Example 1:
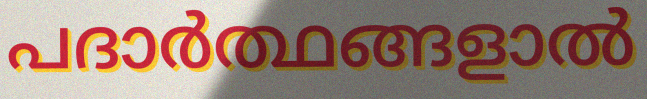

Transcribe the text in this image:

പദാർത്ഥങ്ങളാൽ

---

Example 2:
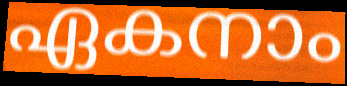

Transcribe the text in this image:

ഏകനാം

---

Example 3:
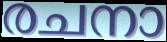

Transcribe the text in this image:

രചനാ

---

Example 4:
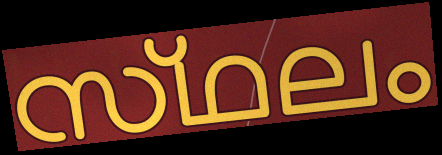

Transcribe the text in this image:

സ്‌ഥലം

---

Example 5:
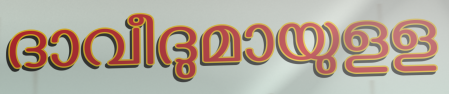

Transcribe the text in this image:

ദാവീദുമായുളള